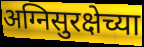
अग्निसुरक्षेच्या